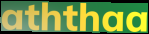
aththaa